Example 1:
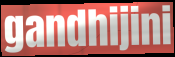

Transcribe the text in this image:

gandhijini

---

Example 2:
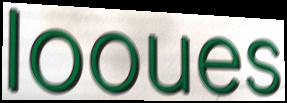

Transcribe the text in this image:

looues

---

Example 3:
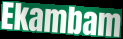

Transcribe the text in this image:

Ekambam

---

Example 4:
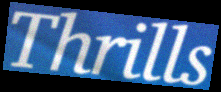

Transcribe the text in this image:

Thrills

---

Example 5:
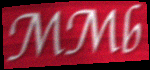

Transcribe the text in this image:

MMb